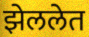
झेललेत